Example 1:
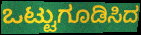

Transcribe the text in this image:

ಒಟ್ಟುಗೂಡಿಸಿದ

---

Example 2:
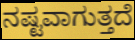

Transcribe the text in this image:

ನಷ್ಟವಾಗುತ್ತದೆ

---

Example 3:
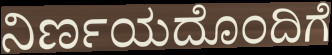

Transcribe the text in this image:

ನಿರ್ಣಯದೊಂದಿಗೆ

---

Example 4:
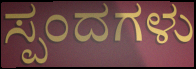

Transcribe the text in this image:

ಸ್ಪಂದಗಳು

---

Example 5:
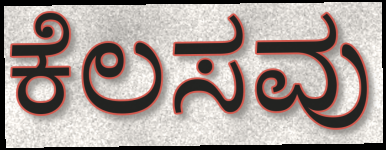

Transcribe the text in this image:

ಕೆಲಸವು